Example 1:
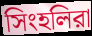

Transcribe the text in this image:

সিংহলিরা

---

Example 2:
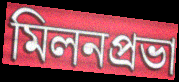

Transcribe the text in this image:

মিলনপ্রভা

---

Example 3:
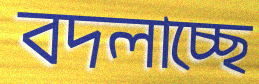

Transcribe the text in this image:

বদলাচ্ছে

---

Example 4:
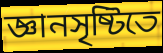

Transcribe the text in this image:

জ্ঞানসৃষ্টিতে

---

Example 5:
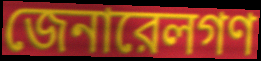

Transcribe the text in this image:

জেনারেলগণ